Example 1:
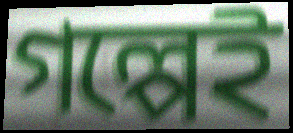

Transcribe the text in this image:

গল্পেই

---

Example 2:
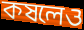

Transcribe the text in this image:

কষলেও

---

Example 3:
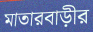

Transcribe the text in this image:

মাতারবাড়ীর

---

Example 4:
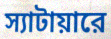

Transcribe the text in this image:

স্যাটায়ারে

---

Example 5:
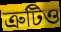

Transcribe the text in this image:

ত্রুটিও